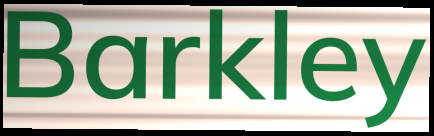
Barkley